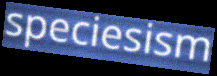
speciesism